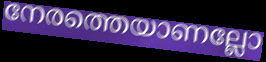
നേരത്തെയാണല്ലോ